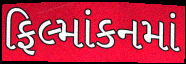
ફિલ્માંકનમાં